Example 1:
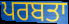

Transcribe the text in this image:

ਪਰਬਤਾ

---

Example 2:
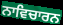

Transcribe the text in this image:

ਨਾਵਿਚਾਰਨ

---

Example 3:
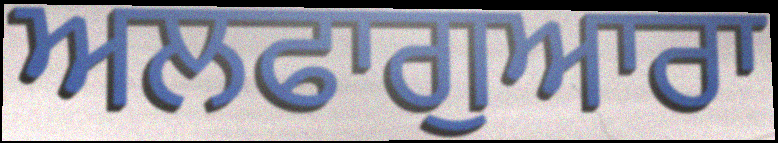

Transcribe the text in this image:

ਅਲਫਾਗੁਆਰਾ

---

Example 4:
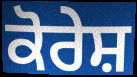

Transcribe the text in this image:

ਕੋਰੇਸ਼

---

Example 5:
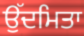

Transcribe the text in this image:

ਉੱਦਮਿਤਾ